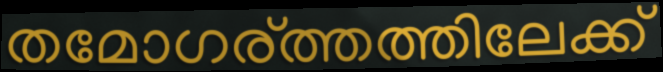
തമോഗര്ത്തത്തിലേക്ക്